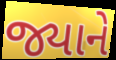
જ્યાને